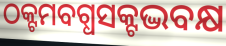
ଠକ୍ଟମବଗ୍ଧସକ୍ଟଦ୍ଭବକ୍ଷ